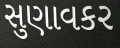
સુણાવકર